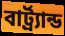
বার্ট্র্যান্ড